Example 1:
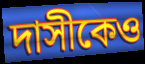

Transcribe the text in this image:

দাসীকেও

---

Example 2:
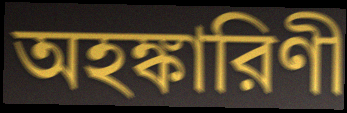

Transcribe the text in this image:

অহঙ্কারিণী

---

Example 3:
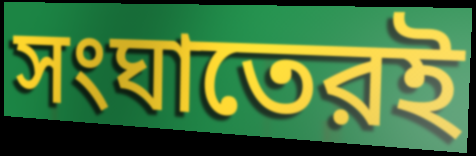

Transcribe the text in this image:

সংঘাতেরই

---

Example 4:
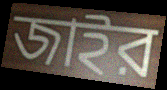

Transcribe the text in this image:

জাইর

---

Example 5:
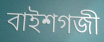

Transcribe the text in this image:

বাইশগজী